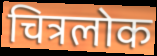
चित्रलोक